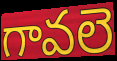
గావలె